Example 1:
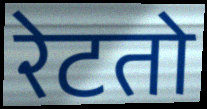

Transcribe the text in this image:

रेटतो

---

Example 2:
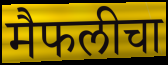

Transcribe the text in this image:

मैफलीचा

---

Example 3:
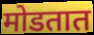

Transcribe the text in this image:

मोडतात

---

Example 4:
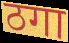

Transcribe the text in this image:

ठगा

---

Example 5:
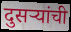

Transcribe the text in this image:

दुसऱ्यांची